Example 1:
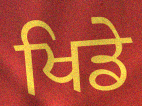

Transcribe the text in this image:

ਖਿਡੇ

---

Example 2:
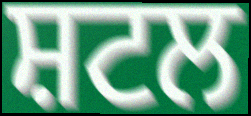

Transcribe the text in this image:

ਸ਼ਟਲ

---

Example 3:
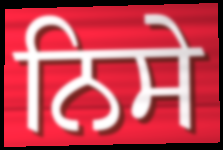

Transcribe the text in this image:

ਨਿਸੇ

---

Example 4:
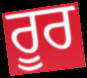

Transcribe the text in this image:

ਰੂਰ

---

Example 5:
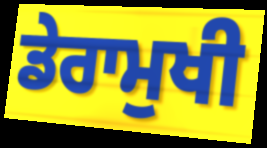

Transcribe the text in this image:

ਡੇਰਾਮੁਖੀ